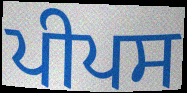
ਪੀਪਸ